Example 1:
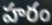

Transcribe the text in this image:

హరం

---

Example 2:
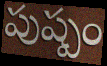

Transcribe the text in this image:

పుష్పం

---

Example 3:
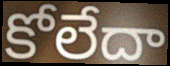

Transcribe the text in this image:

కోలేదా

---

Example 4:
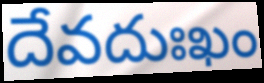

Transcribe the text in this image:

దేవదుఃఖం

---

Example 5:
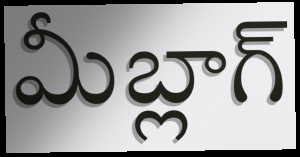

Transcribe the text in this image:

మీబ్లాగ్